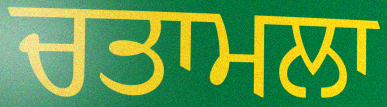
ਚਤਾਮਲਾ